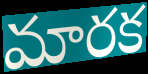
మారక